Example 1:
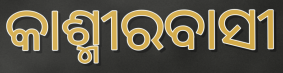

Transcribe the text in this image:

କାଶ୍ମୀରବାସୀ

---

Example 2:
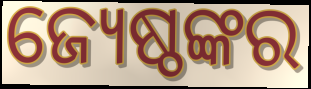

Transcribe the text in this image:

ଜ୍ୟେଷ୍ଠଙ୍କର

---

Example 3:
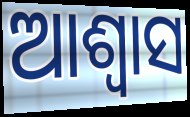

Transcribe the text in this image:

ଆଶ୍ୱାସ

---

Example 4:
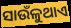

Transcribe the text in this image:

ସାଉଁଳୁଥାଏ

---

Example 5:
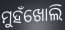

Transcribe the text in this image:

ମୁହଁଖୋଲି